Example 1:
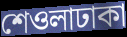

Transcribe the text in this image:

শেওলাঢাকা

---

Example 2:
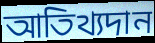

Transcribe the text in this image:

আতিথ্যদান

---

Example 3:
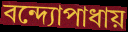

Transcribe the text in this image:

বন্দ্যোপাধায়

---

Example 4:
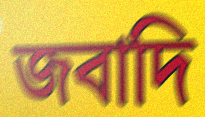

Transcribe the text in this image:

জবাদি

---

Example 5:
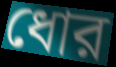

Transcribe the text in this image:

ধোর